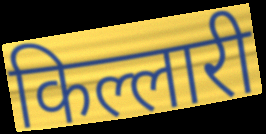
किल्लारी